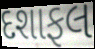
દશાફલ